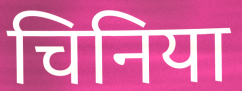
चिनिया